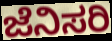
ಜೆನಿಸರಿ